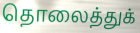
தொலைத்துக்